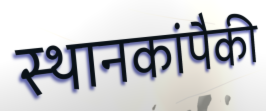
स्थानकांपैकी